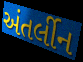
અંતર્લીન